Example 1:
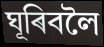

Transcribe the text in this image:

ঘূৰিবলৈ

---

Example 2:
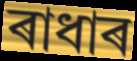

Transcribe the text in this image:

ৰাধাৰ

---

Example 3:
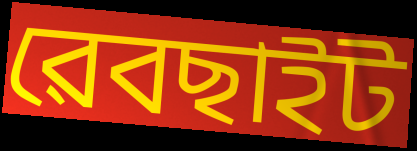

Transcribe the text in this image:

ৱেবছাইট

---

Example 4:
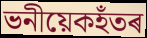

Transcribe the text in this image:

ভনীয়েকহঁতৰ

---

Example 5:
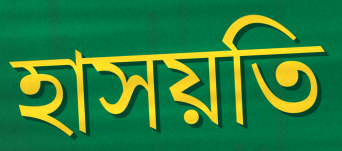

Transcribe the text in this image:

হাসয়তি